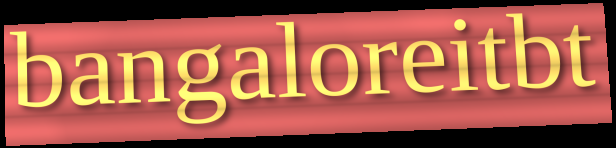
bangaloreitbt